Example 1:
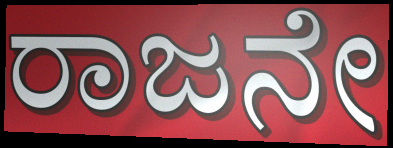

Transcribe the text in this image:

ರಾಜನೇ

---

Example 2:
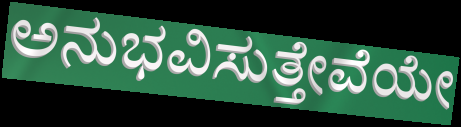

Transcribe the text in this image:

ಅನುಭವಿಸುತ್ತೇವೆಯೇ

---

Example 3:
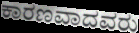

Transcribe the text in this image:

ಕಾರಣವಾದವರು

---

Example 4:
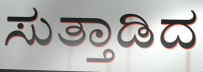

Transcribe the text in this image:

ಸುತ್ತಾಡಿದ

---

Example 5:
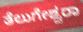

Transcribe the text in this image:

ತೆಲುಗೇಶ್ವರಾ